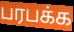
பரபக்க